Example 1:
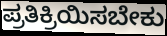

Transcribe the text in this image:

ಪ್ರತಿಕ್ರಿಯಿಸಬೇಕು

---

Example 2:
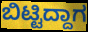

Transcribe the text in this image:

ಬಿಟ್ಟಿದ್ದಾಗ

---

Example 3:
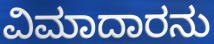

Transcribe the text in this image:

ವಿಮಾದಾರನು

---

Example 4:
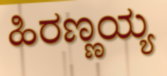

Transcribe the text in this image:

ಹಿರಣ್ಣಯ್ಯ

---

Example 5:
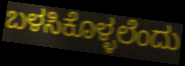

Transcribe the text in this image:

ಬಳಸಿಕೊಳ್ಳಲೆಂದು